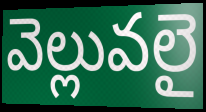
వెల్లువలై